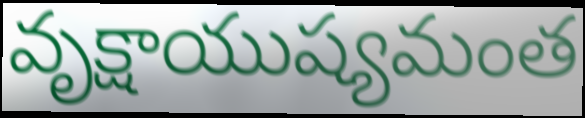
వృక్షాయుష్యమంత